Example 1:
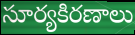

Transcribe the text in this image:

సూర్యకిరణాలు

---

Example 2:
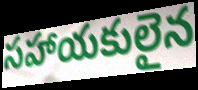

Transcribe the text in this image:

సహాయకులైన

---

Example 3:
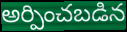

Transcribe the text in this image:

అర్పించబడిన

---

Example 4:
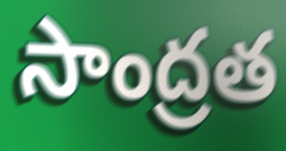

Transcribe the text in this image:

సాంద్రత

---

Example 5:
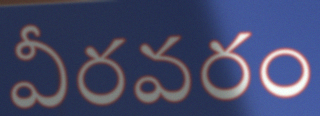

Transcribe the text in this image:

వీరవరం